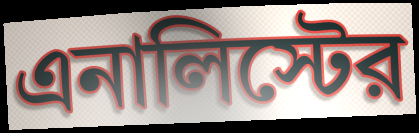
এনালিস্টের